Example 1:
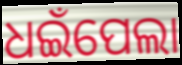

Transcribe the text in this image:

ଧଇଁପେଲା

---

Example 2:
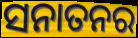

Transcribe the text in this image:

ସନାତନର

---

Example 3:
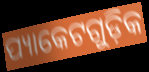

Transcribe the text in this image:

ପ୍ୟାକେଟଗୁଡ଼ିକ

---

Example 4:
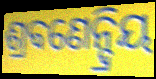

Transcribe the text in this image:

ଶ୍ରବଣେନ୍ଦ୍ରିୟ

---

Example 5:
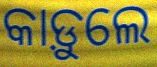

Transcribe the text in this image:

କାଡ଼ୁଲେ